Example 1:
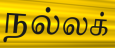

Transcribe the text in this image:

நல்லக்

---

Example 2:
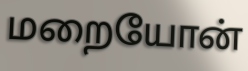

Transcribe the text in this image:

மறையோன்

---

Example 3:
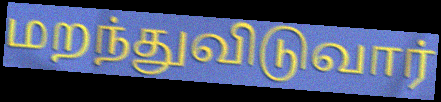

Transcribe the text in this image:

மறந்துவிடுவார்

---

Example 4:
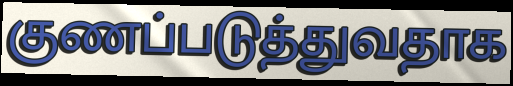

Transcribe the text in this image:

குணப்படுத்துவதாக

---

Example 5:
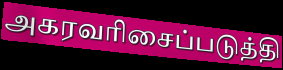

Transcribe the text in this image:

அகரவரிசைப்படுத்தி